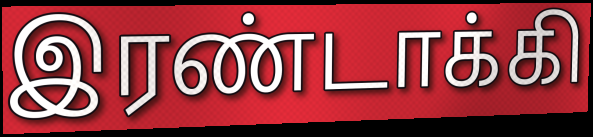
இரண்டாக்கி